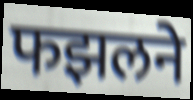
फझलने